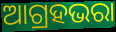
ଆଗ୍ରହଭରା